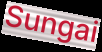
Sungai